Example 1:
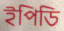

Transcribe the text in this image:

ইপিডি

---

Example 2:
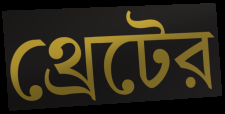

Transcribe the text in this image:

থ্রেটের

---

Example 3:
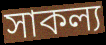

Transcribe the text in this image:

সাকল্য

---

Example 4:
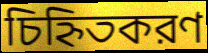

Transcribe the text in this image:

চিহ্নিতকরণ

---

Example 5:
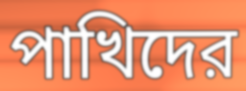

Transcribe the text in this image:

পাখিদের